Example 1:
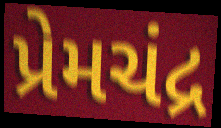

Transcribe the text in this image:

પ્રેમચંદ્ર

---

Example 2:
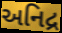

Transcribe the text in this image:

અનિદ્ર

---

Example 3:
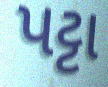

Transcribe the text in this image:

પટ્ટા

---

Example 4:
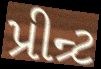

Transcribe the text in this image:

પ્રીન્ર્ટ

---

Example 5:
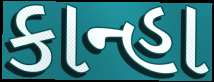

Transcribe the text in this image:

કાન્હા